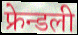
फ्रेन्डली